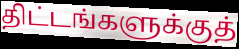
திட்டங்களுக்குத்